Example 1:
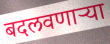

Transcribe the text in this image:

बदलवणार्‍या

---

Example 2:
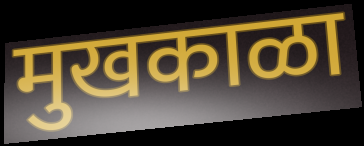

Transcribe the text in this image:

मुखकाळा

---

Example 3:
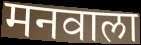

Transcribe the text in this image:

मनवाला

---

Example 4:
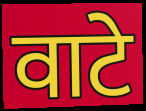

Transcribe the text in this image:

वाटे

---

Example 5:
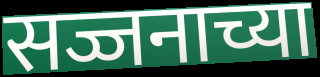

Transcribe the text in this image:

सज्जनाच्या